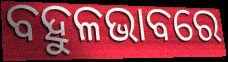
ବହୁଳଭାବରେ